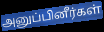
அனுப்பினீர்கள்